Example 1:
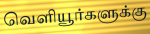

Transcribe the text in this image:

வெளியூர்களுக்கு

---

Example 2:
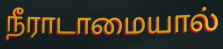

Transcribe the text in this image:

நீராடாமையால்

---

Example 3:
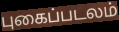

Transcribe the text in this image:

புகைப்படலம்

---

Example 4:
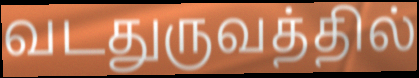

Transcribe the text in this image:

வடதுருவத்தில்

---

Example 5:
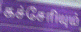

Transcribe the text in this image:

கச்சேரியும்